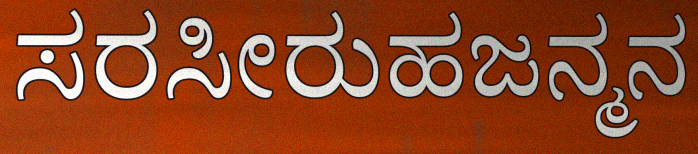
ಸರಸೀರುಹಜನ್ಮನ